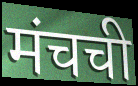
मंचची